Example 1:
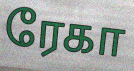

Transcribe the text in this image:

ரேகா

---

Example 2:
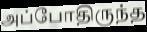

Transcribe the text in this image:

அப்போதிருந்த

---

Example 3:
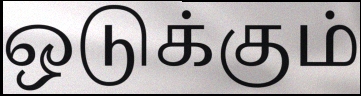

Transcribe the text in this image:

ஒடுக்கும்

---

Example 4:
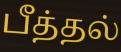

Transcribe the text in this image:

பீத்தல்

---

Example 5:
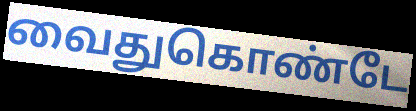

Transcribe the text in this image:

வைதுகொண்டே